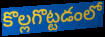
కొల్లగొట్టడంలో